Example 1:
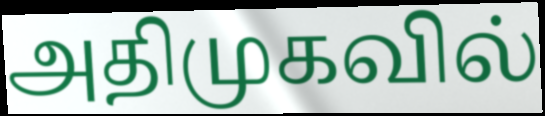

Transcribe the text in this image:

அதிமுகவில்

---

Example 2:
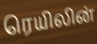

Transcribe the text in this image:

ரெயிலின்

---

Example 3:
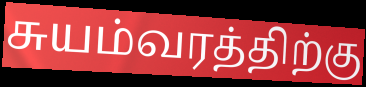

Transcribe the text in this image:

சுயம்வரத்திற்கு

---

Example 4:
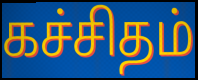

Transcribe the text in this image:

கச்சிதம்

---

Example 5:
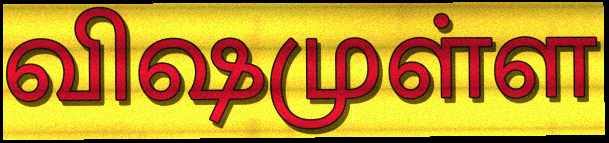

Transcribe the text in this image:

விஷமுள்ள